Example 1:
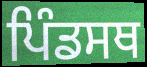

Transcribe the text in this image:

ਪਿੰਡਸਥ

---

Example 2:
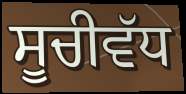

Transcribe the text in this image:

ਸੂਚੀਵੱਧ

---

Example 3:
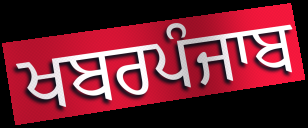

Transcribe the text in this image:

ਖਬਰਪੰਜਾਬ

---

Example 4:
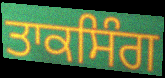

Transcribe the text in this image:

ਤਾਕਸਿੰਗ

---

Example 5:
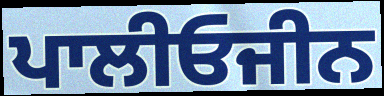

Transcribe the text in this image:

ਪਾਲੀਓਜੀਨ